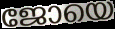
ജോയെ